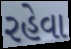
રહેવા